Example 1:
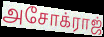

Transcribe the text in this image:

அசோக்ராஜ்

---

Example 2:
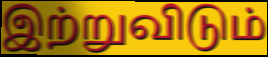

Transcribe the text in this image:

இற்றுவிடும்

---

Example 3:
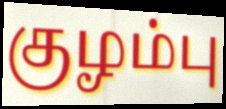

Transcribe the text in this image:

குழம்பு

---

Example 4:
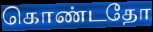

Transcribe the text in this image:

கொண்டதோ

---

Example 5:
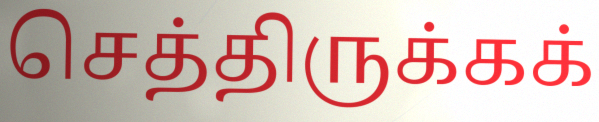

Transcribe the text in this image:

செத்திருக்கக்